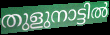
തുളുനാട്ടിൽ